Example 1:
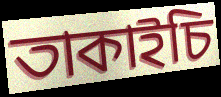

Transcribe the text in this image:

তাকাইচি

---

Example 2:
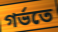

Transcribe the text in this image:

গৰ্ভতে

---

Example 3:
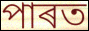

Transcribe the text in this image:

পাৰত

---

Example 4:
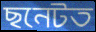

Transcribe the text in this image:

ছনেটত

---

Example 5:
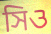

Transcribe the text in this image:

সিও